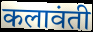
कलावंती